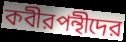
কবীরপন্থীদের